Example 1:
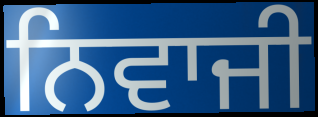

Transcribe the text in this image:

ਨਿਵਾਜੀ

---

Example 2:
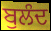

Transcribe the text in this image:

ਬੁਲੰਦ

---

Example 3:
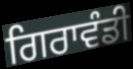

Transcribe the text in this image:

ਗਿਰਾਵੰਡੀ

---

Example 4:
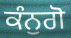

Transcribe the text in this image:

ਕੰਨੁਗੋ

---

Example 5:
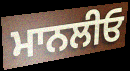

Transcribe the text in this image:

ਮਾਨਲੀਓ